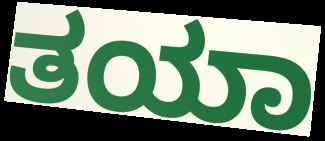
ತಯಾ